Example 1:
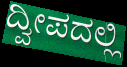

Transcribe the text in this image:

ದ್ವೀಪದಲ್ಲಿ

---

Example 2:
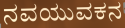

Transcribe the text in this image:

ನವಯುವಕನ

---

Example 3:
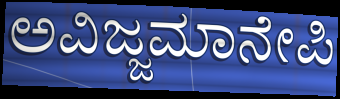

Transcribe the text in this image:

ಅವಿಜ್ಜಮಾನೇಪಿ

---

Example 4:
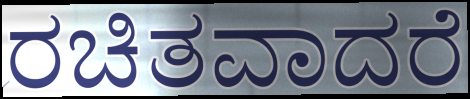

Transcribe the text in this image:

ರಚಿತವಾದರೆ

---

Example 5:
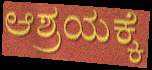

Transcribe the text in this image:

ಆಶ್ರಯಕ್ಕೆ